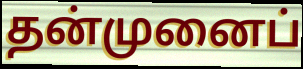
தன்முனைப்